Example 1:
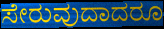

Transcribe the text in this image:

ಸೇರುವುದಾದರೂ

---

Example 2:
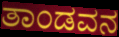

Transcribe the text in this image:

ತಾಂಡವನ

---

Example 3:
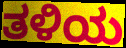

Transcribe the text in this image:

ತಳಿಯ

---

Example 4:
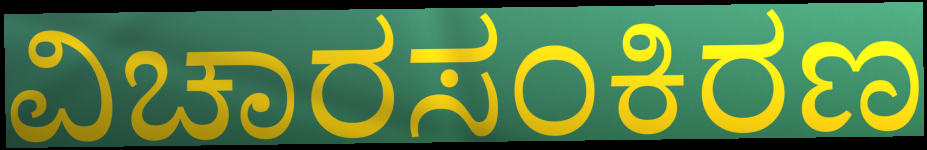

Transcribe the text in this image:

ವಿಚಾರಸಂಕಿರಣ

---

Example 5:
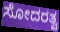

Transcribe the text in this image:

ಸೋದರತ್ವ